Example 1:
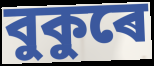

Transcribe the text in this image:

বুকুৰে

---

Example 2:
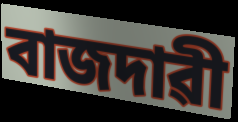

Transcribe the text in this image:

বাজদাৱী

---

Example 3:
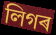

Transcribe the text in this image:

লিগৰ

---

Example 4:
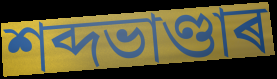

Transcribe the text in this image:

শব্দভাণ্ডাৰ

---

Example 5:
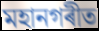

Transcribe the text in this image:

মহানগৰীত